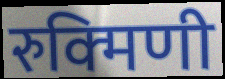
रुक्मिणी